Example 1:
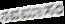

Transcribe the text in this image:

ನವಮಾಸಂ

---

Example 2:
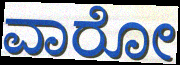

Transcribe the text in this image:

ವಾರೋ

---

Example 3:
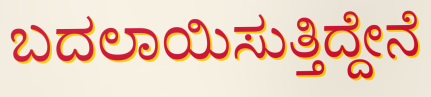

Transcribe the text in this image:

ಬದಲಾಯಿಸುತ್ತಿದ್ದೇನೆ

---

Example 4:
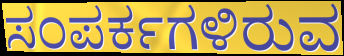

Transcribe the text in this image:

ಸಂಪರ್ಕಗಳಿರುವ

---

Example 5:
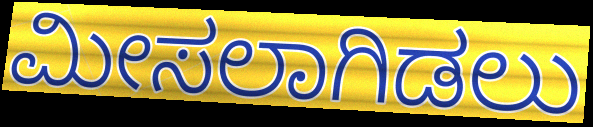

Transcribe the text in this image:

ಮೀಸಲಾಗಿಡಲು